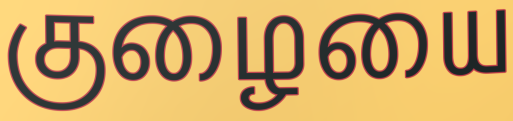
குழையை